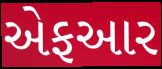
એફઆર